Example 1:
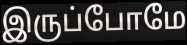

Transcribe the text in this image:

இருப்போமே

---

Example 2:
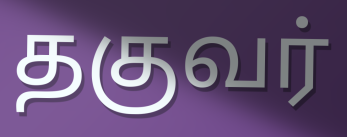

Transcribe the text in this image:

தகுவர்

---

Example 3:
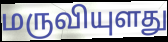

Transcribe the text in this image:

மருவியுளது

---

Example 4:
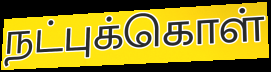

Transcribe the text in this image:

நட்புக்கொள்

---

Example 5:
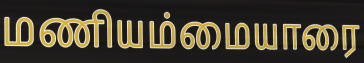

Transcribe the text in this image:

மணியம்மையாரை